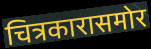
चित्रकारासमोर